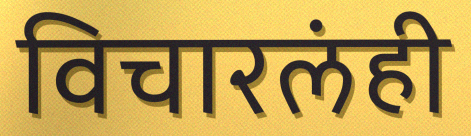
विचारलंही